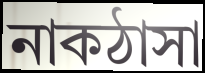
নাকঠাসা